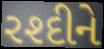
રશ્દીને